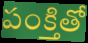
పంక్తితో